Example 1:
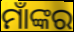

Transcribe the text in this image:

ମାଁଙ୍କର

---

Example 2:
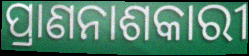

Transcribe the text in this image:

ପ୍ରାଣନାଶକାରୀ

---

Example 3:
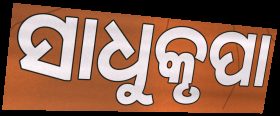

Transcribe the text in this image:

ସାଧୁକୃପା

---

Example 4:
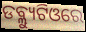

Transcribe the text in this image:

ଡବ୍ଲ୍ୟୁଟିଓରେ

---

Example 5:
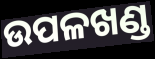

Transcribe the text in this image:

ଉପଳଖଣ୍ଡ